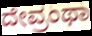
ದೇವ್ರಂಥಾ